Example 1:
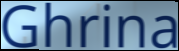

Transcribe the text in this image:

Ghrina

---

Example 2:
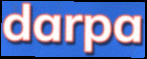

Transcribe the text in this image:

darpa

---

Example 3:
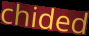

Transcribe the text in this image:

chided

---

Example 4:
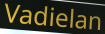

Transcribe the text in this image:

Vadielan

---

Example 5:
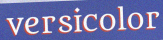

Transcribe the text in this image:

versicolor